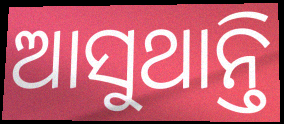
ଆସୁଥାନ୍ତି